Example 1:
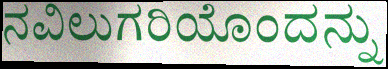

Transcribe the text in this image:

ನವಿಲುಗರಿಯೊಂದನ್ನು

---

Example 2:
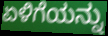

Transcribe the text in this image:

ಏಳಿಗೆಯನ್ನು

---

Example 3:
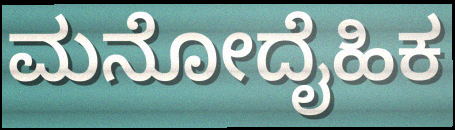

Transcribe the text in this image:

ಮನೋದೈಹಿಕ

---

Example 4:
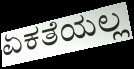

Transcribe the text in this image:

ಏಕತೆಯಲ್ಲ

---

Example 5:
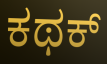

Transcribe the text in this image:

ಕಥಕ್